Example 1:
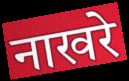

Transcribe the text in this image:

नाखरे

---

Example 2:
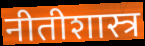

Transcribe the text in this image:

नीतीशास्त्र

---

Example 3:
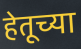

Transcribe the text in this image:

हेतूच्या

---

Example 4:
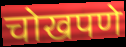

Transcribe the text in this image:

चोखपणे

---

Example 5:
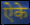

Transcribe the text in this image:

ऐके